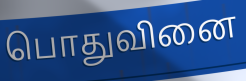
பொதுவினை